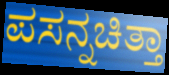
ಪಸನ್ನಚಿತ್ತಾ